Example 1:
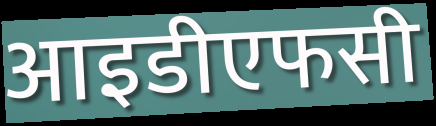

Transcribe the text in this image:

आइडीएफसी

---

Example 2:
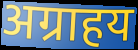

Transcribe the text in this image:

अग्राहय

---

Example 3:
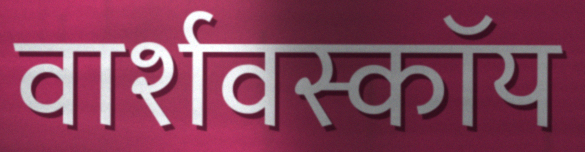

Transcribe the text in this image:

वार्शवस्कॉय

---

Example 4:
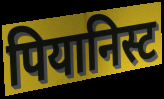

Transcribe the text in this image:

पियानिस्ट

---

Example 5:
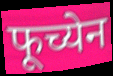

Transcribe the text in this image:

फूच्येन